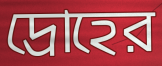
দ্রোহের